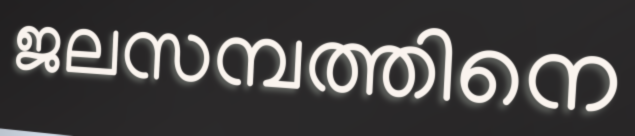
ജലസമ്പത്തിനെ